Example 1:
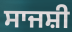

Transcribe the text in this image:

ਸਾਜਸ਼ੀ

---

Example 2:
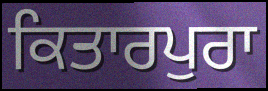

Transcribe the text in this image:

ਕਿਤਾਰਪੁਰਾ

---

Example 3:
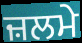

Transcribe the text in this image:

ਜ਼ਲਮੇ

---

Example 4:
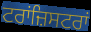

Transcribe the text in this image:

ਟਰਾਂਜ਼ਿਸਟਰਾਂ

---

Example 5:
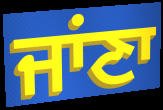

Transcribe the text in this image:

ਜਾਂਣਾ